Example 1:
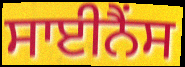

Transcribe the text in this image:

ਸਾਈਨੈਂਸ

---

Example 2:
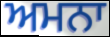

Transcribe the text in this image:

ਅਮਨਾ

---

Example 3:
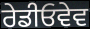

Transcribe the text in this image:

ਰੇਡੀਓਵੇਵ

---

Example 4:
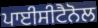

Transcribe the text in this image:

ਪਾਈਸੀਟੈਨੋਲ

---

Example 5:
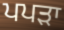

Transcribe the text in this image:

ਪਪੜਾ